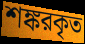
শঙ্করকৃত